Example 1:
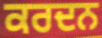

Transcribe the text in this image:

ਕਰਦਨ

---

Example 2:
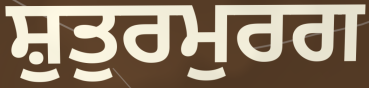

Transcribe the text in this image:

ਸ਼ੁਤੁਰਮੁਰਗ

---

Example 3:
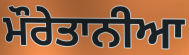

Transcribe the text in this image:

ਮੌਰੇਤਾਨੀਆ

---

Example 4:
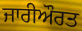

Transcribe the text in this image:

ਜਾਰੀਔਰਤ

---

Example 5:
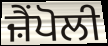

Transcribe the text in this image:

ਜ਼ੈਂਪੋਲੀ